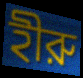
হীরু